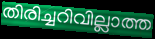
തിരിച്ചറിവില്ലാത്ത